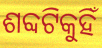
ଶବ୍ଦଟିକୁହିଁ